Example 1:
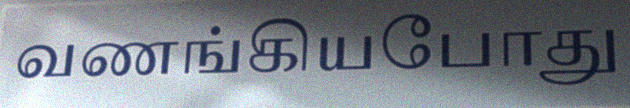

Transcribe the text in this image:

வணங்கியபோது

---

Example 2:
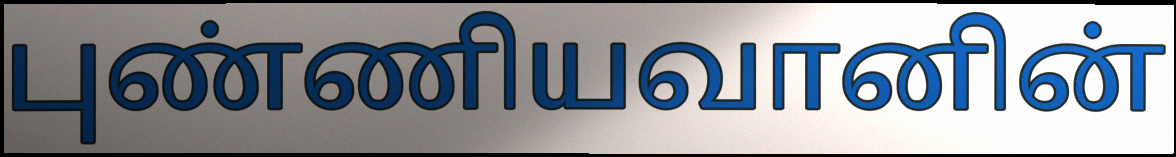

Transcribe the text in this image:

புண்ணியவானின்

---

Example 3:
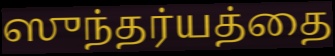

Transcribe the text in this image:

ஸுந்தர்யத்தை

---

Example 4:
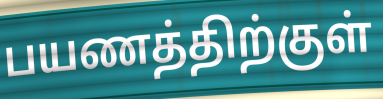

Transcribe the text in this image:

பயணத்திற்குள்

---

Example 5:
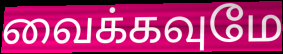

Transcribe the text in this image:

வைக்கவுமே